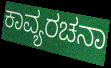
ಕಾವ್ಯರಚನಾ